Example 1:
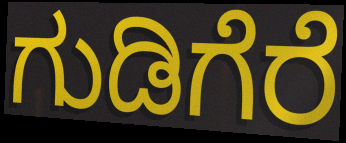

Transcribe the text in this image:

ಗುಡಿಗೆರೆ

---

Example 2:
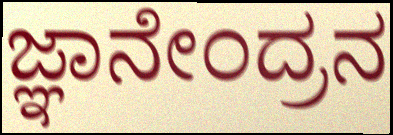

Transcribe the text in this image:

ಜ್ಞಾನೇಂದ್ರನ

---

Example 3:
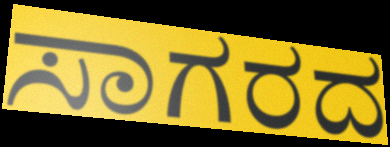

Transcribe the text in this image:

ಸಾಗರದ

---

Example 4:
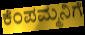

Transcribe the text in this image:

ಕೆಂಪಮ್ಮನಿಗೆ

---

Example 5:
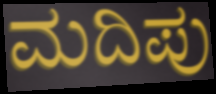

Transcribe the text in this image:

ಮದಿಪು